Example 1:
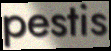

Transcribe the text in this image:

pestis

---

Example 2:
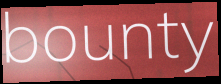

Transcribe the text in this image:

bounty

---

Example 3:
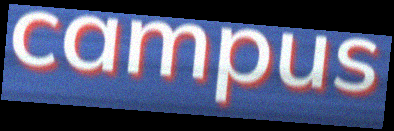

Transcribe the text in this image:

campus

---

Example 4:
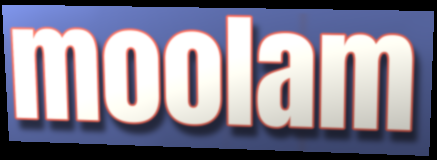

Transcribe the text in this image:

moolam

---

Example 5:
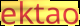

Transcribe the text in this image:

ektao